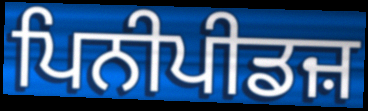
ਪਿਨੀਪੀਡਜ਼